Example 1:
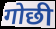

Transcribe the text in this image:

गोछी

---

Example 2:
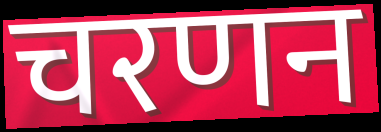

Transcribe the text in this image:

चरणन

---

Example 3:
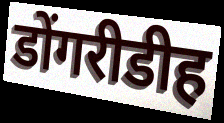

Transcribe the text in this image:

डोंगरीडीह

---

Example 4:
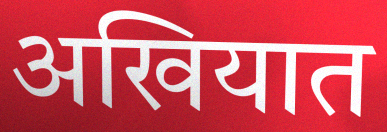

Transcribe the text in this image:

अखियात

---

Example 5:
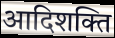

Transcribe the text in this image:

आदिशक्ति